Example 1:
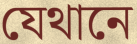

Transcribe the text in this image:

যেথানে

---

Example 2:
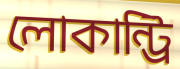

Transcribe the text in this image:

লোকান্ট্রি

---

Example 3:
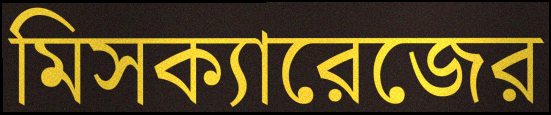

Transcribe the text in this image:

মিসক্যারেজের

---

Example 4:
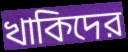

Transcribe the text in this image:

খাকিদের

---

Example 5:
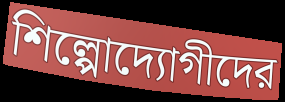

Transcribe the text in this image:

শিল্পোদ্যোগীদের